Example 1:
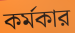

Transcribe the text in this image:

কর্মকার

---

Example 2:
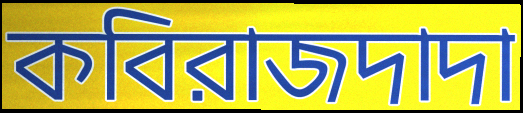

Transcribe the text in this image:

কবিরাজদাদা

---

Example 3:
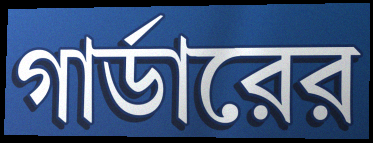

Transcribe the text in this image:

গার্ডারের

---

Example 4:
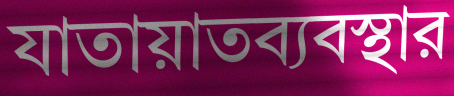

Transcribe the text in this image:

যাতায়াতব্যবস্থার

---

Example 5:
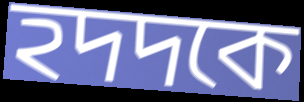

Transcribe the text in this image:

হদদকে